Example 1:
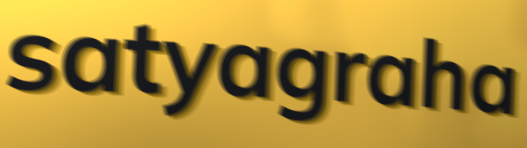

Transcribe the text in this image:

satyagraha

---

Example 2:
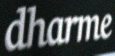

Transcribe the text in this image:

dharme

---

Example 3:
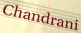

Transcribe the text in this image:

Chandrani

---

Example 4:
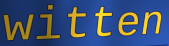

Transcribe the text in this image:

witten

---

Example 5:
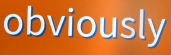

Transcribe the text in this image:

obviously